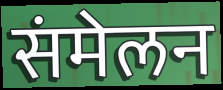
संमेलन